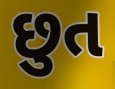
છુત